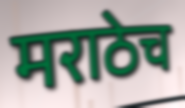
मराठेच